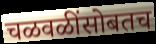
चळवळींसोबतच